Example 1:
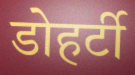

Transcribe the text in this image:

डोहर्टी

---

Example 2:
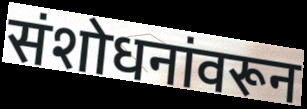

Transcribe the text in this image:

संशोधनांवरून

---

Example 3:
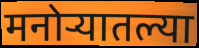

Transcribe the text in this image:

मनोर्‍यातल्या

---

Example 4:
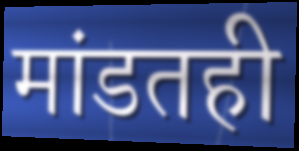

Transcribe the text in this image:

मांडतही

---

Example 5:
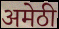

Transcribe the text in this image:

अमेठी